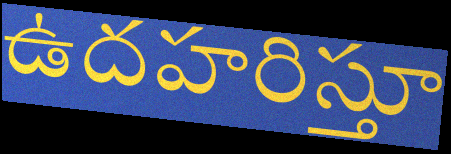
ఉదహరిస్తూ